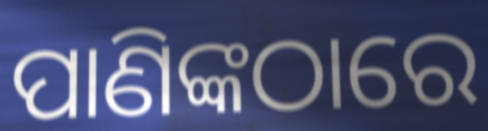
ପାଣିଙ୍କଠାରେ